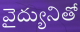
వైద్యునితో